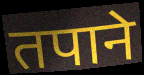
तपाने